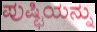
ಪುಷ್ಟಿಯನ್ನು